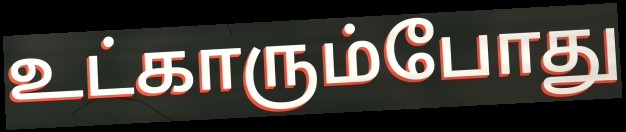
உட்காரும்போது